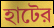
হাটের